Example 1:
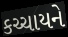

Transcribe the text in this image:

કચ્ચાયને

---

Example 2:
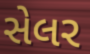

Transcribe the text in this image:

સેલર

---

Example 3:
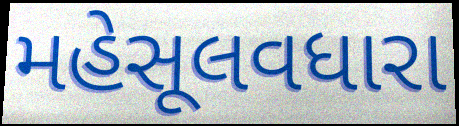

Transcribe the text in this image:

મહેસૂલવધારા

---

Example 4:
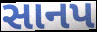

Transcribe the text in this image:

સાનપ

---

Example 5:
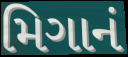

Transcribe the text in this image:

મિગાનં